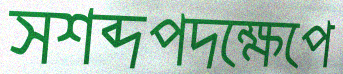
সশব্দপদক্ষেপে